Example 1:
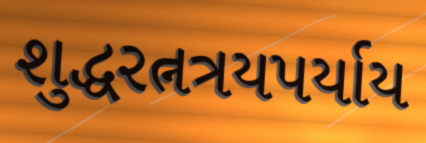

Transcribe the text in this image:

શુદ્ધરત્નત્રયપર્યાય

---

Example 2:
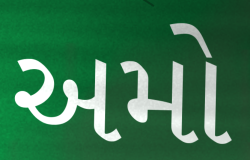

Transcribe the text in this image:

અમો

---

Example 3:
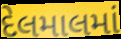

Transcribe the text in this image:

દેલમાલમાં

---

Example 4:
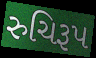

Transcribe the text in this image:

રુચિરૂપ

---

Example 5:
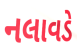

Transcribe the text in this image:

નલાવડે